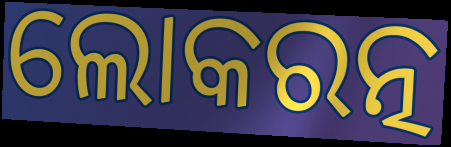
ଲୋକରତ୍ନ